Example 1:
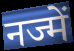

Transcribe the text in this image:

नज्में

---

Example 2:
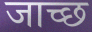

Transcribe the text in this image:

जाच्छ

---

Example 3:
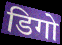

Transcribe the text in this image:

डिगो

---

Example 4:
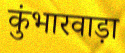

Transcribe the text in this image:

कुंभारवाड़ा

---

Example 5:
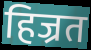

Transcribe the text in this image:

हिज्रत